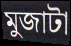
মুজাটা